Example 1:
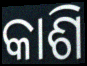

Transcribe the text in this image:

କାଶି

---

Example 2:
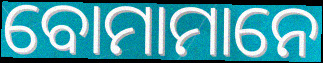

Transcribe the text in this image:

ବୋମାମାନେ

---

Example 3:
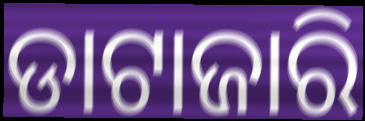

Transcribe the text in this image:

ଡାଟାଜାରି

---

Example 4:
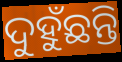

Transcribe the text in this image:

ଦୁହୁଁଛନ୍ତି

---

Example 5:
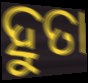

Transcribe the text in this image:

ହୁତା